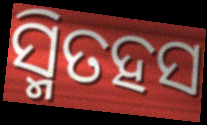
ସ୍ମିତହସ